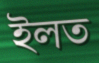
ইলত